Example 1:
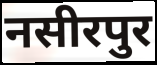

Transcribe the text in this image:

नसीरपुर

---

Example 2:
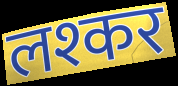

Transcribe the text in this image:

लश्‍कर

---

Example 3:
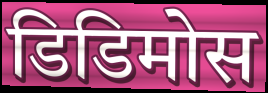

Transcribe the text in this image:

डिडिमोस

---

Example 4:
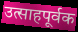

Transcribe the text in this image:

उत्‍साहपूर्वक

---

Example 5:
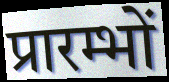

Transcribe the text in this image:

प्रारम्भों